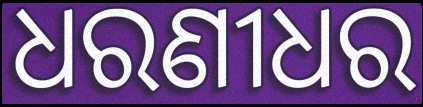
ଧରଣୀଧର